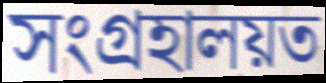
সংগ্ৰহালয়ত